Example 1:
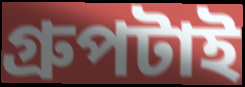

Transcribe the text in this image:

গ্রুপটাই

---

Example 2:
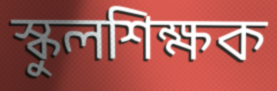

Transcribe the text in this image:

স্কুলশিক্ষক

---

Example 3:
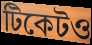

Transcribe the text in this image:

টিকেটও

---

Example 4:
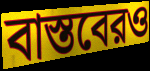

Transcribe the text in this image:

বাস্তবেরও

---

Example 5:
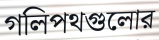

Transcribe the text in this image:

গলিপথগুলোর